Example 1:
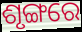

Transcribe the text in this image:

ଶୃଙ୍ଗରେ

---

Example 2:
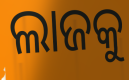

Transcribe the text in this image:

ଲାଜକୁ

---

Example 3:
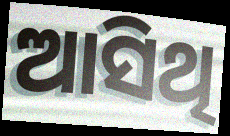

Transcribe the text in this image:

ଆସିଥି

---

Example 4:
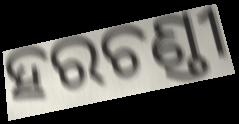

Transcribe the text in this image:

ହରଚଣ୍ଡୀ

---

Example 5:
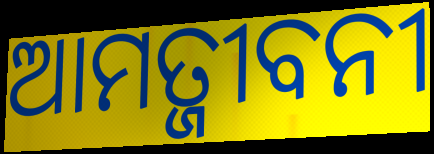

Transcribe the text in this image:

ଆମତ୍ଜୀବନୀ